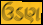
ઉડણ